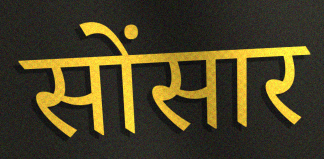
सोंसार